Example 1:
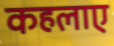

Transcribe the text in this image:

कहलाए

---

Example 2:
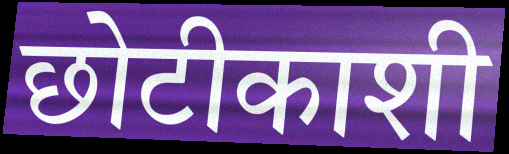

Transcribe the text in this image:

छोटीकाशी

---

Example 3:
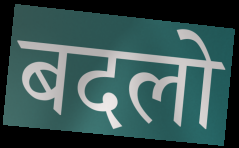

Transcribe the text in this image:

बदलो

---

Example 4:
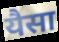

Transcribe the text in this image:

यैसा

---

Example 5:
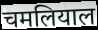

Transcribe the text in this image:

चमलियाल